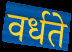
वर्धते